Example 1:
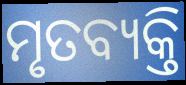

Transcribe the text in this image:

ମୃତବ୍ୟକ୍ତି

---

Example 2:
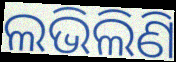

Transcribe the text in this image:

ଲଭିଲିଣି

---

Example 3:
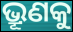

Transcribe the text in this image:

ଭ୍ରୂଣକୁ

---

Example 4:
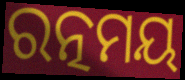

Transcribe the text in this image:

ରତ୍ନମୟ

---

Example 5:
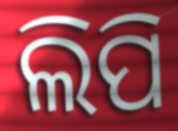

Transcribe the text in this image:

ଲିପି